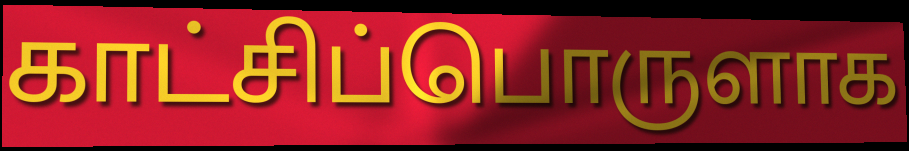
காட்சிப்பொருளாக